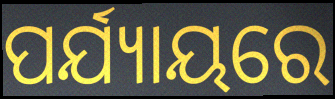
ପର୍ଯ୍ଯାୟରେ